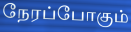
நேரப்போகும்